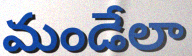
మండేలా